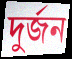
দুর্জন